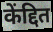
केंद्दित